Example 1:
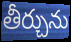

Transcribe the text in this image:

తీర్చును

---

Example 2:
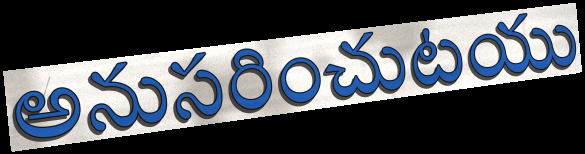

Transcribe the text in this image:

అనుసరించుటయు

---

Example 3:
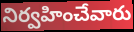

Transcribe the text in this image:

నిర్వహించేవారు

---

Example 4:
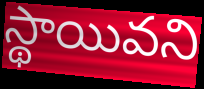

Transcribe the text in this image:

స్థాయివని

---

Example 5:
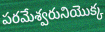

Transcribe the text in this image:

పరమేశ్వరునియొక్క